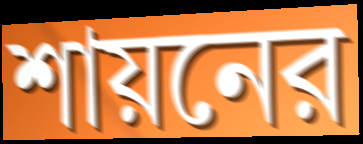
শায়নের